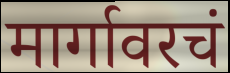
मार्गावरचं